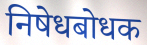
निषेधबोधक